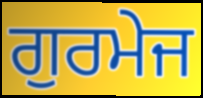
ਗੁਰਮੇਜ